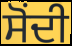
ਸੋਂਦੀ